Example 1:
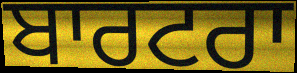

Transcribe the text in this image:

ਬਾਰਟਰਾ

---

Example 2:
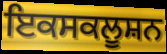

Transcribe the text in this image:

ਇਕਸਕਲੂਸ਼ਨ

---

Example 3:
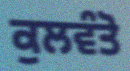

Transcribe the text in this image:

ਕੁਲਵੰਤੋ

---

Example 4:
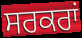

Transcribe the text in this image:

ਸਰਕਰਾਂ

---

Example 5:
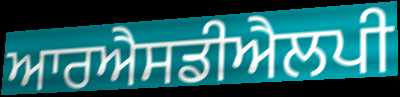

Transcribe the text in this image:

ਆਰਐਸਡੀਐਲਪੀ